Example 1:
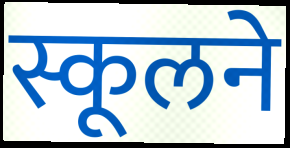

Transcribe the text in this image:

स्कूलने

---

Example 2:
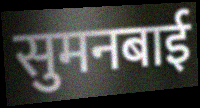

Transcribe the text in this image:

सुमनबाई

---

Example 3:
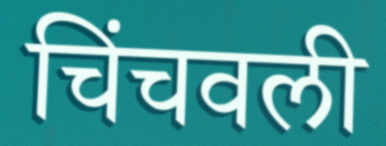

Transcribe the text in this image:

चिंचवली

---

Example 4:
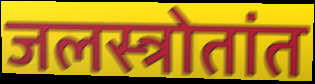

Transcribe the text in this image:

जलस्त्रोतांत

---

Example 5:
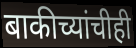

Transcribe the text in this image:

बाकीच्यांचीही